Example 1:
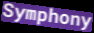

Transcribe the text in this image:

Symphony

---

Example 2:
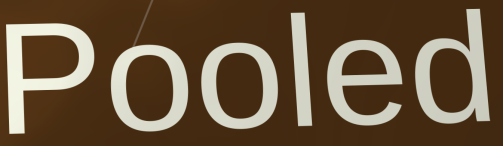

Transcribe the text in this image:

Pooled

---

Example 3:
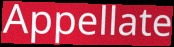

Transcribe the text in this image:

Appellate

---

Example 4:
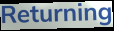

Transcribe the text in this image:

Returning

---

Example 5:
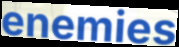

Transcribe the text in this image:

enemies